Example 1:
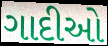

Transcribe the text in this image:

ગાદીઓ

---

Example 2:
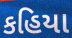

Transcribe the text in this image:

કહિયા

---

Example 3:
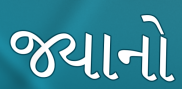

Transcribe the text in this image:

જ્યાનો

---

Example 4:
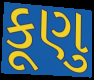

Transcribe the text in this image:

કૂણુ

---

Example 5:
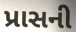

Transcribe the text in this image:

પ્રાસની